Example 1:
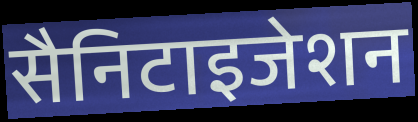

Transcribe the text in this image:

सैनिटाइजेशन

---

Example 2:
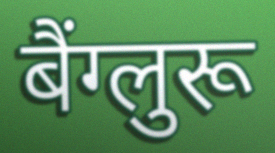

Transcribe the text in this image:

बैंग्लुरू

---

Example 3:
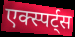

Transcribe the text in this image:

एक्स्पर्ट्स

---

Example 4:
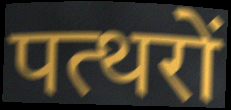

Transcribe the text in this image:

पत्‍थरों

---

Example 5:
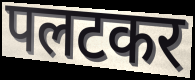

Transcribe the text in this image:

पलटकर